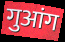
गुआंग